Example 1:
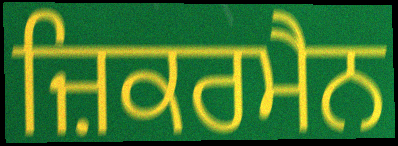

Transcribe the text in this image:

ਜ਼ਿਕਰਮੈਨ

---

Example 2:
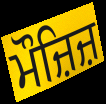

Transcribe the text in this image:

ਮੌਜ਼ਿਜ਼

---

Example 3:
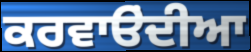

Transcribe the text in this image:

ਕਰਵਾੳਂਦੀਆ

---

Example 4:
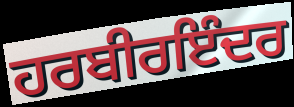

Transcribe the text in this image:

ਹਰਬੀਰਇੰਦਰ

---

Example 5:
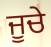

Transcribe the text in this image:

ਜੂਚੇ